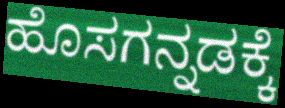
ಹೊಸಗನ್ನಡಕ್ಕೆ